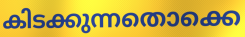
കിടക്കുന്നതൊക്കെ